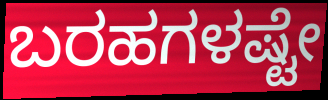
ಬರಹಗಳಷ್ಟೇ